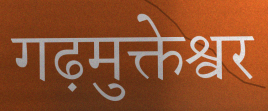
गढ़मुक्तेश्वर